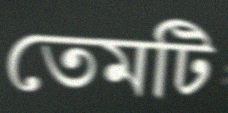
তেমটি